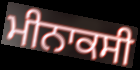
ਮੀਨਾਕਸੀ